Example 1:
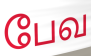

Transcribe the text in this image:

பேவ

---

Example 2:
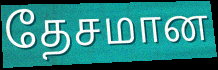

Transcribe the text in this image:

தேசமான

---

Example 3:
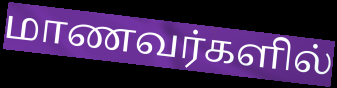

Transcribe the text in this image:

மாணவர்களில்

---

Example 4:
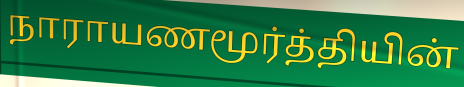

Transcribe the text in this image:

நாராயணமூர்த்தியின்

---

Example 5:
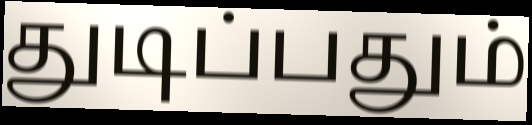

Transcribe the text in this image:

துடிப்பதும்